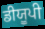
ਡੀਯੂਪੀ